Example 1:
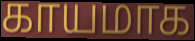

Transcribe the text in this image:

காயமாக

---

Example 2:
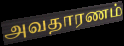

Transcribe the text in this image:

அவதாரணம்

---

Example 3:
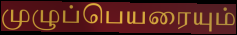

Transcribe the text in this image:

முழுப்பெயரையும்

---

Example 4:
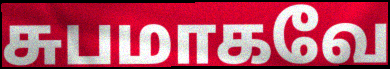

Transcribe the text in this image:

சுபமாகவே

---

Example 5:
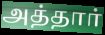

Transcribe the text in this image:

அத்தார்